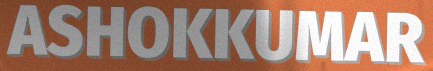
ASHOKKUMAR